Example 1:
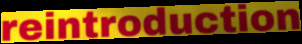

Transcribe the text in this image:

reintroduction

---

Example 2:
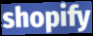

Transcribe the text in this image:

shopify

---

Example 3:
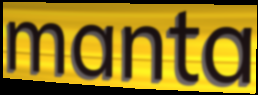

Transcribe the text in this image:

manta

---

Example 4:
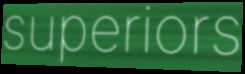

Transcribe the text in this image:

superiors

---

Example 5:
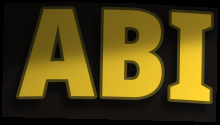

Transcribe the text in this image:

ABI